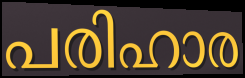
പരിഹാര